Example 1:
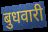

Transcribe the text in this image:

बुधवारी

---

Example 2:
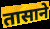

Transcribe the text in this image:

तासाने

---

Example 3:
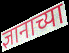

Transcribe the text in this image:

ज्ञानाच्या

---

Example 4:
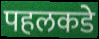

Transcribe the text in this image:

पहलकडे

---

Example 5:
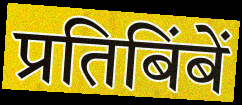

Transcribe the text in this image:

प्रतिबिंबें